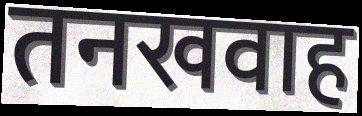
तनखवाह